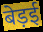
बेड़ई